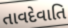
તાવદેવાતિ